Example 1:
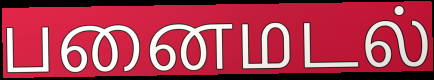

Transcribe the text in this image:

பனைமடல்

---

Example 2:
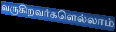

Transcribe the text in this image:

வருகிறவர்களெல்லாம்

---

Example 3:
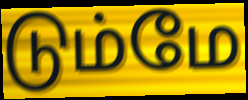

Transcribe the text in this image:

டும்மே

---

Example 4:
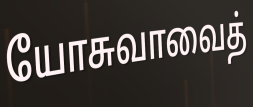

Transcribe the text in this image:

யோசுவாவைத்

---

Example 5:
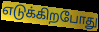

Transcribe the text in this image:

எடுக்கிறபோது